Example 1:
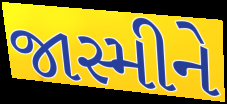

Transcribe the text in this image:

જાસ્મીને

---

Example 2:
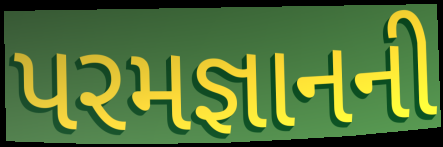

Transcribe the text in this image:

પરમજ્ઞાનની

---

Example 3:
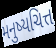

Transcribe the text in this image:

મનુષ્યચિત્ત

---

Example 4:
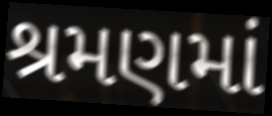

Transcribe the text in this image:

શ્રમણમાં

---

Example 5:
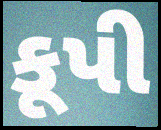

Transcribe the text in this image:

કૂપી